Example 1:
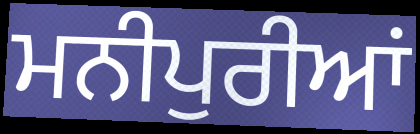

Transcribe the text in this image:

ਮਨੀਪੁਰੀਆਂ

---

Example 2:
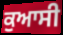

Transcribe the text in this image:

ਕੁਆਸੀ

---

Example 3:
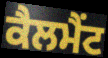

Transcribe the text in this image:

ਕੈਲਮੈਂਟ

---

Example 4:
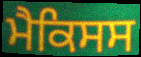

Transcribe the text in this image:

ਮੈਕਿਸਸ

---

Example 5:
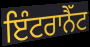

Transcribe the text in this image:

ਇੰਟਰਾਨੈੱਟ